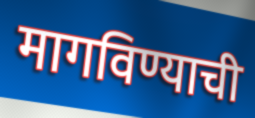
मागविण्याची